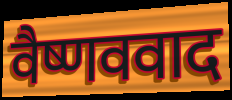
वैष्णववाद